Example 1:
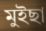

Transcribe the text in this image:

মুইছা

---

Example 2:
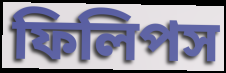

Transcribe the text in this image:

ফিলিপস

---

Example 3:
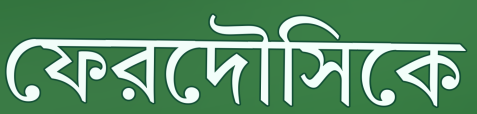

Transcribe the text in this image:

ফেরদৌসিকে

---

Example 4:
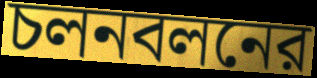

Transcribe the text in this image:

চলনবলনের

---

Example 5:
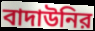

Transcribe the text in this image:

বাদাউনির